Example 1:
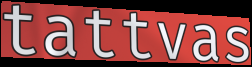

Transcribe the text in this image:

tattvas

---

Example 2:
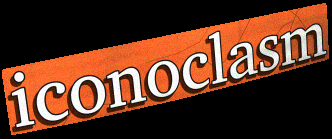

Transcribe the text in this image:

iconoclasm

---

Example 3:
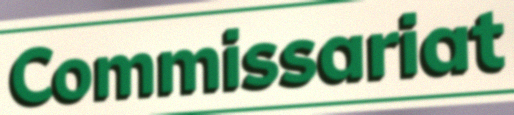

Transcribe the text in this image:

Commissariat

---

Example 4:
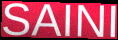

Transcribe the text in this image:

SAINI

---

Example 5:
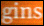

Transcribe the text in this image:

gins